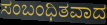
ಸಂಬಂಧಿತವಾದ